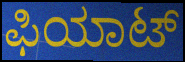
ಫಿಯಾಟ್